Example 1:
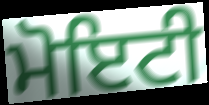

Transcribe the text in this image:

ਮੋਇਟੀ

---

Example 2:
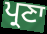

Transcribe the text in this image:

ਪ੍ਰਣਾ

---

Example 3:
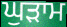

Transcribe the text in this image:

ਘੁੜਾਮ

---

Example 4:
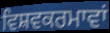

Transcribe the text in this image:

ਵਿਸ਼ਵਕਰਮਾਵਾਂ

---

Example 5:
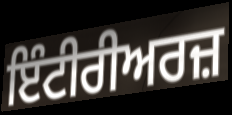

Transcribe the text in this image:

ਇੰਟੀਰੀਅਰਜ਼